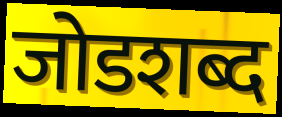
जोडशब्द